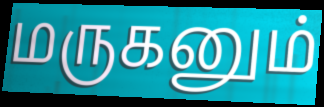
மருகனும்